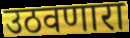
उठवणारा